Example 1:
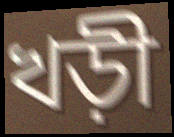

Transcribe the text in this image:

খড়ী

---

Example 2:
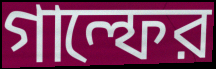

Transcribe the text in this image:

গাল্ফের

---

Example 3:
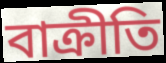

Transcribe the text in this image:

বাক্রীতি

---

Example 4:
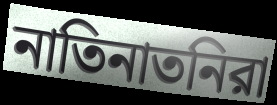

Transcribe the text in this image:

নাতিনাতনিরা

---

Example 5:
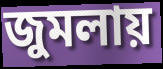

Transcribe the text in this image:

জুমলায়